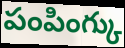
పంపింగ్కు